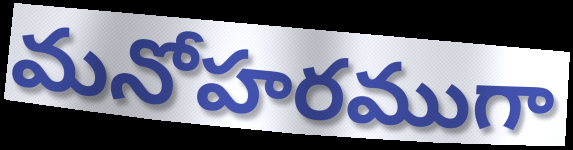
మనోహరముగా